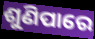
ଶୁଣିପାରେ